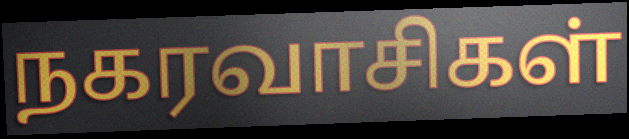
நகரவாசிகள்